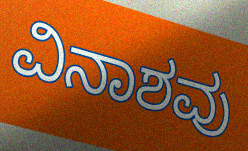
ವಿನಾಶವು